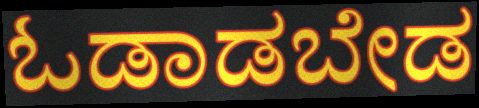
ಓಡಾಡಬೇಡ